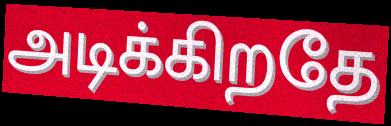
அடிக்கிறதே